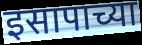
इसापाच्या